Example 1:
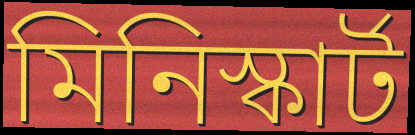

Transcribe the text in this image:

মিনিস্কার্ট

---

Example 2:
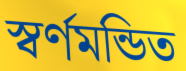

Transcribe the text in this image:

স্বর্ণমন্ডিত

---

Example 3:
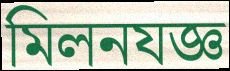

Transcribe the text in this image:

মিলনযজ্ঞ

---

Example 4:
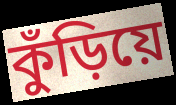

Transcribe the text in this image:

কুঁড়িয়ে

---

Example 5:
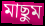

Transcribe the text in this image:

মাছুম